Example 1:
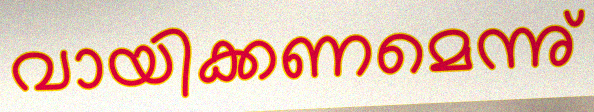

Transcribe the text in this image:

വായിക്കണമെന്നു്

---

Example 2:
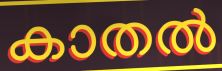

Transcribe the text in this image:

കാതൽ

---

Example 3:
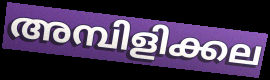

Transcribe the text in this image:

അമ്പിളിക്കല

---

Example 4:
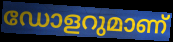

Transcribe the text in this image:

ഡോളറുമാണ്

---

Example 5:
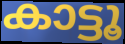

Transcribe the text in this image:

കാട്ടൂ